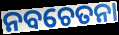
ନବଚେତନା